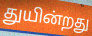
துயின்றது